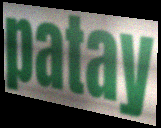
patay